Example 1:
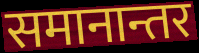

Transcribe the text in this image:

समानान्तर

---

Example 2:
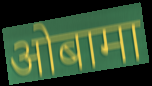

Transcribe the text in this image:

ओबामा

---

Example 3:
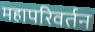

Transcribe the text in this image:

महापरिवर्तन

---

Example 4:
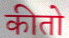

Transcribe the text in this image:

कीतो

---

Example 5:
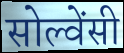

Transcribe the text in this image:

सोल्वेंसी